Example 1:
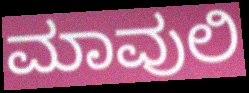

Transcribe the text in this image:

ಮಾವುಲಿ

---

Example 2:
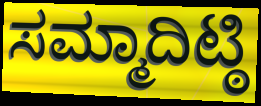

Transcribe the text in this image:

ಸಮ್ಮಾದಿಟ್ಠಿ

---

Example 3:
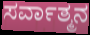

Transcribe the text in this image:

ಸರ್ವಾತ್ಮನ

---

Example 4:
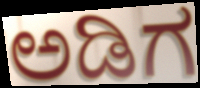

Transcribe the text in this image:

ಅಡಿಗ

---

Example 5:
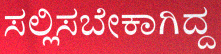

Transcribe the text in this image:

ಸಲ್ಲಿಸಬೇಕಾಗಿದ್ದ